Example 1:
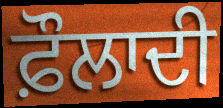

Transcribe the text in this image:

ਫ਼ੌਲਾਦੀ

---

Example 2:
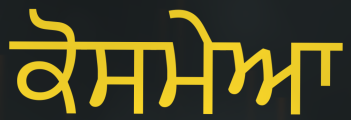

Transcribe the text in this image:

ਕੋਸਮੇਆ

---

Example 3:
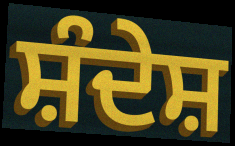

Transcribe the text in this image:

ਸ਼ੰਦੇਸ਼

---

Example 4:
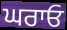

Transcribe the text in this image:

ਘਰਾਓ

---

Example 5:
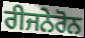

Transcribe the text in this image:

ਰੀਜਨੇਰੋਨ